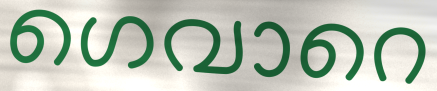
ഗെവാറെ